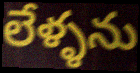
లేళ్ళను